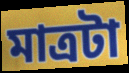
মাত্রটা